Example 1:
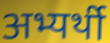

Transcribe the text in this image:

अभ्यर्थी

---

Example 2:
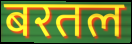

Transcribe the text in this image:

बरतल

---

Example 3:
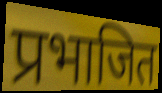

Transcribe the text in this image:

प्रभाजित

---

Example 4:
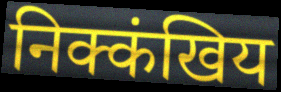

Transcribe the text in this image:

निक्कंखिय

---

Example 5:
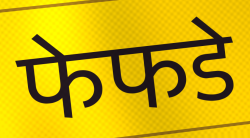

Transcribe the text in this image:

फेफडे